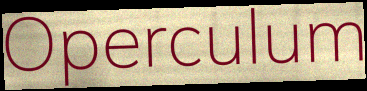
Operculum